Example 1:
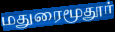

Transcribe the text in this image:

மதுரைமூதூர்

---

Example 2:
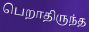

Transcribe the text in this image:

பெறாதிருந்த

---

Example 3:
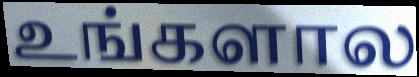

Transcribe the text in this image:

உங்களால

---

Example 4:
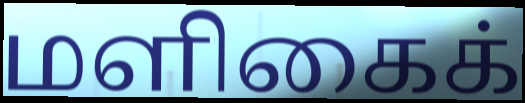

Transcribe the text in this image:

மளிகைக்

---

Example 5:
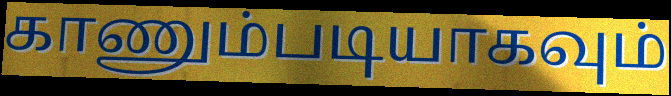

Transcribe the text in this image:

காணும்படியாகவும்